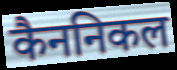
कैननिकल